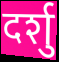
दर्शु